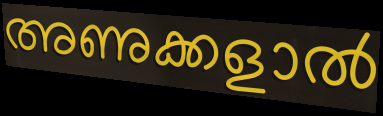
അണുക്കളാൽ